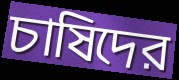
চাষিদের